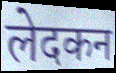
लेदकन